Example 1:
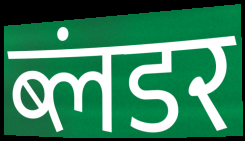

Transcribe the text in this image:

ब्लंडर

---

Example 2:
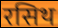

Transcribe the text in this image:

रसिथ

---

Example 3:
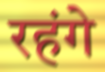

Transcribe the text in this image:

रहंगे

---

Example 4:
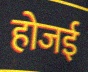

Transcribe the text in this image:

होजई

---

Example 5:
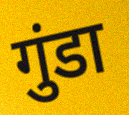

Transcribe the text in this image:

गुंडा